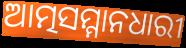
ଆତ୍ମସମ୍ମାନଧାରୀ